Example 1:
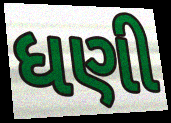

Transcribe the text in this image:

ધણી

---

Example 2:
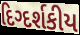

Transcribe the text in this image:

દિગ્દર્શકીય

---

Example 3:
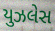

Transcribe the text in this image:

યુઝલેસ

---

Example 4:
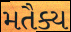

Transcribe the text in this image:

મતૈક્ય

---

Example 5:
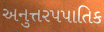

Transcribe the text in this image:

અનુત્તરપપાતિક